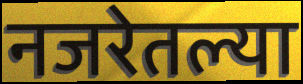
नजरेतल्या